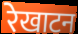
रेखाटन